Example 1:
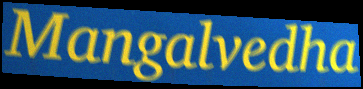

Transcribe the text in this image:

Mangalvedha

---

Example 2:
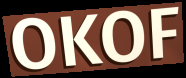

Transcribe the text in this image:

OKOF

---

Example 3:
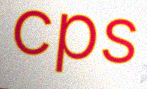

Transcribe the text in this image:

cps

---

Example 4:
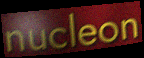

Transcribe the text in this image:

nucleon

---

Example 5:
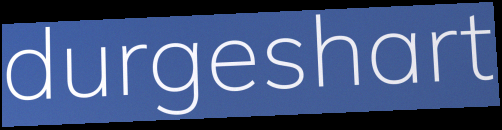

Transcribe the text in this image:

durgeshart